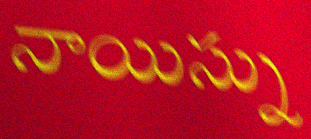
నాయిస్ను